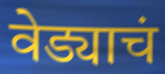
वेड्याचं